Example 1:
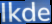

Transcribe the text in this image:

Ikde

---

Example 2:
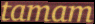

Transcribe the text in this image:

tamam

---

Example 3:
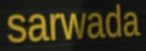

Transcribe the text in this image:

sarwada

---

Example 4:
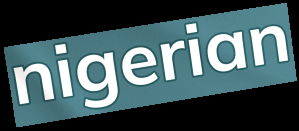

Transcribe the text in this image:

nigerian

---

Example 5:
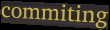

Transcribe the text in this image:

commiting